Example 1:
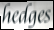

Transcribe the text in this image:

hedges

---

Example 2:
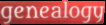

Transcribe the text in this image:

genealogy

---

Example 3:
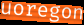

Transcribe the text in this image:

uoregon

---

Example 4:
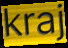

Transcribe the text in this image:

kraj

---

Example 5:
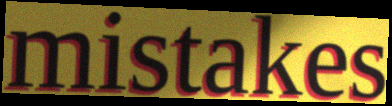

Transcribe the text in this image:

mistakes